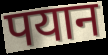
पयान